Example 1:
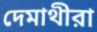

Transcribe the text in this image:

দেমাথীরা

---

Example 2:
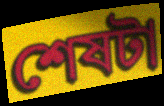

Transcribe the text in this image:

শেষটা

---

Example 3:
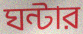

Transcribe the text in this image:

ঘন্টার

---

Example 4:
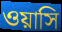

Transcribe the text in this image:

ওয়াসি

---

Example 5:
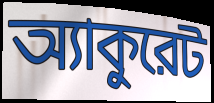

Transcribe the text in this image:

অ্যাকুরেট